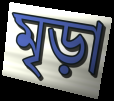
মৃড়া